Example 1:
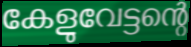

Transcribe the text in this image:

കേളുവേട്ടന്റെ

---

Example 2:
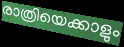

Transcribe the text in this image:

രാത്രിയെക്കാളും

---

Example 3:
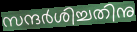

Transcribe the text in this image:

സന്ദർശിച്ചതിനു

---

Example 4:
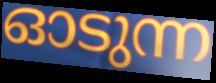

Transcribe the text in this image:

ഓടുന്ന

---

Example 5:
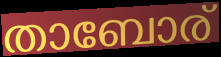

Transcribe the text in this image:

താബോര്